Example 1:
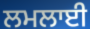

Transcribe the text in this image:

ਲਮਲਾਈ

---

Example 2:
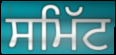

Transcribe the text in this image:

ਸਮਿੱਟ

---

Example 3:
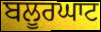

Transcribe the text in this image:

ਬਲੂਰਘਾਟ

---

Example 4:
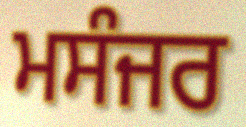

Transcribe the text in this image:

ਮਸੰਜਰ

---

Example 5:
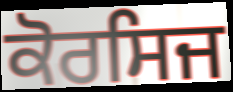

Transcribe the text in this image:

ਕੋਰਸਿਜ